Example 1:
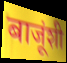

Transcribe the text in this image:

बाजूंशी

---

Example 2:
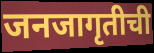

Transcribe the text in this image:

जनजागृतीची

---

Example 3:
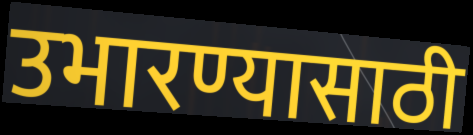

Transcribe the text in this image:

उभारण्यासाठी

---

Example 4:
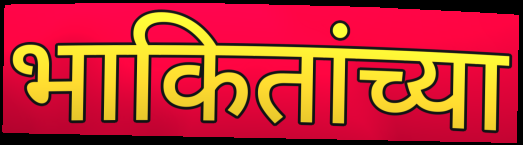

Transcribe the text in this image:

भाकितांच्या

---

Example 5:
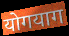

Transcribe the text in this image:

योगयाग